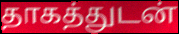
தாகத்துடன்